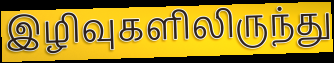
இழிவுகளிலிருந்து